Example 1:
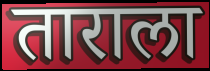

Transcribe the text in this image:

ताराला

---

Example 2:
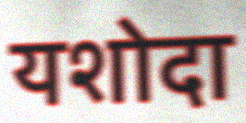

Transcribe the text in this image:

यशोदा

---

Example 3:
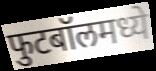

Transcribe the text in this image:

फुटबॉलमध्ये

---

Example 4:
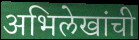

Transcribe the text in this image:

अभिलेखांची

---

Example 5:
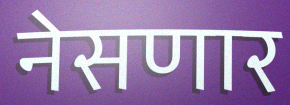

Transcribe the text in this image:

नेसणार